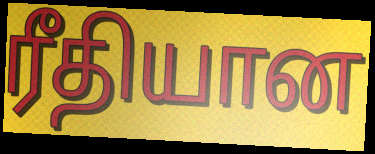
ரீதியான